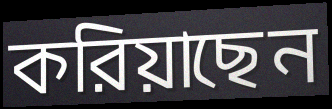
করিয়াছেন